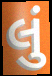
લું